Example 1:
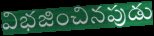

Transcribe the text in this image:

విభజించినపుడు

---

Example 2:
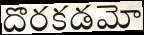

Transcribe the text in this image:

దొరకడమో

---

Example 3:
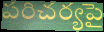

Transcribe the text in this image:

పరిచర్యపై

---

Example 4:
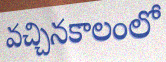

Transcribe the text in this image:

వచ్చినకాలంలో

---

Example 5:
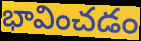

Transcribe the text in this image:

భావించడం